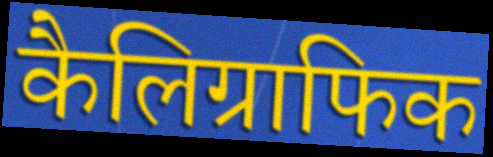
कैलिग्राफिक